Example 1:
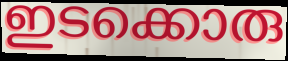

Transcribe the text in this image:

ഇടക്കൊരു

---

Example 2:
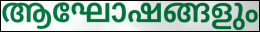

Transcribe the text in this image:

ആഘോഷങ്ങളും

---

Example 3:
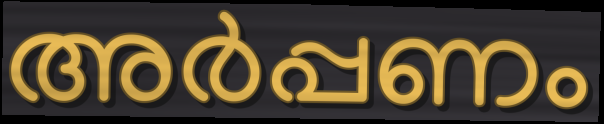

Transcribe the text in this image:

അർപ്പണം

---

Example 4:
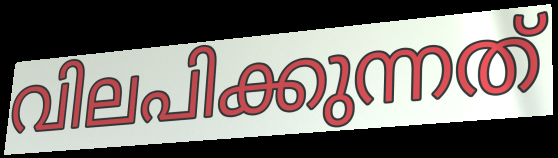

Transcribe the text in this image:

വിലപിക്കുന്നത്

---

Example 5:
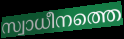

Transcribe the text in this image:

സ്വാധീനത്തെ